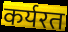
कर्यरत